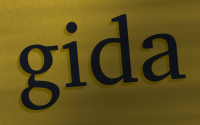
gida